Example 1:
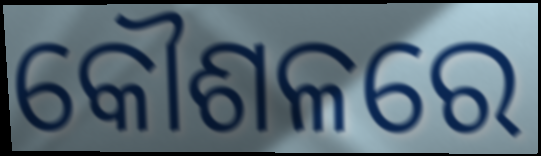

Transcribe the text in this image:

କୌଶଳରେ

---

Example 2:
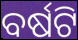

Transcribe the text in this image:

ବର୍ଷଟି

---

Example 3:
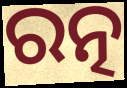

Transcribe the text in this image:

ରତ୍ନ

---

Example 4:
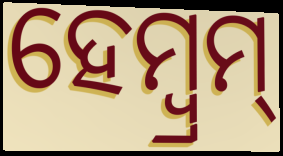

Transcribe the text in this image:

ହେମ୍ବ୍ରମ୍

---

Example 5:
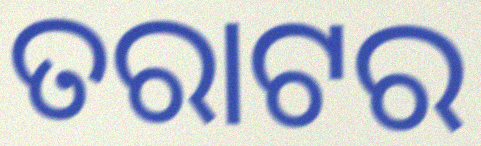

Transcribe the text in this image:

ତରାଟର